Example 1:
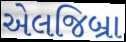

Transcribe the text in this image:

એલજિબ્રા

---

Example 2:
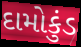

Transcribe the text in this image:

દામોકુંડ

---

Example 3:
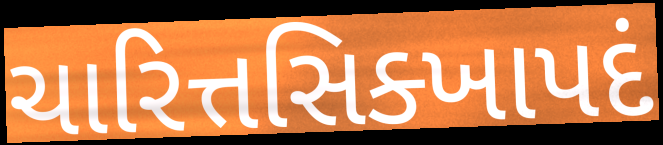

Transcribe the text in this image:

ચારિત્તસિક્ખાપદં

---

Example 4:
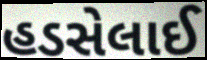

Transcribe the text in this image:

હડસેલાઈ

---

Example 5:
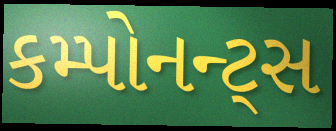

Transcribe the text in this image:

કમ્પોનન્ટ્સ